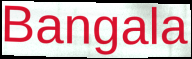
Bangala